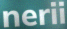
nerii